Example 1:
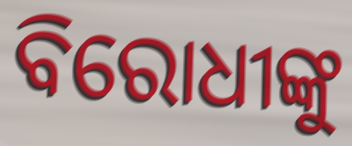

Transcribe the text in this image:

ବିରୋଧୀଙ୍କୁ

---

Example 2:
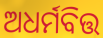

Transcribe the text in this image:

ଅଧର୍ମବିତ୍ତ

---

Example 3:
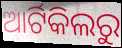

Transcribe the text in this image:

ଆର୍ଟିକିଲରୁ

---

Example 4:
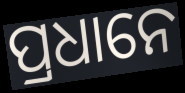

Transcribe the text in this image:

ପ୍ରଧାନେ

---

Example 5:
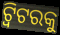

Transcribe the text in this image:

ଟ୍ୱିଟରକୁ